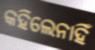
କହିଲେନାହିଁ